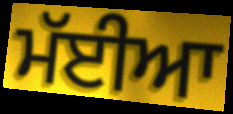
ਮੱਈਆ